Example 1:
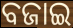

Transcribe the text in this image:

ବଜାଇ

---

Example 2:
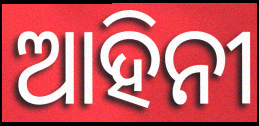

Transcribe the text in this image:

ଆହିନୀ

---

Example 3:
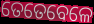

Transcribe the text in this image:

ତେତେବେଳେ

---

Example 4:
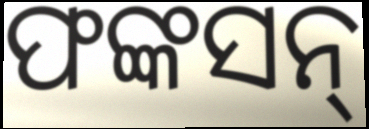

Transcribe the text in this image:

ଫଙ୍କସନ୍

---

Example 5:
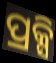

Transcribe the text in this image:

ପ୍ରକ୍ସି